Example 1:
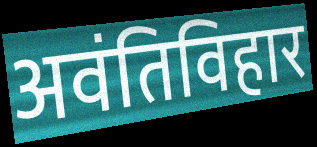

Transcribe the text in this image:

अवंतिविहार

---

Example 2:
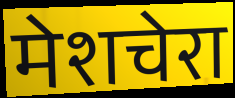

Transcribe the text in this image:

मेशचेरा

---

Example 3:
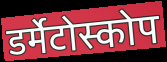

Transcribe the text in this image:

डर्मेटोस्कोप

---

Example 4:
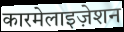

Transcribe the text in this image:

कारमेलाइज़ेशन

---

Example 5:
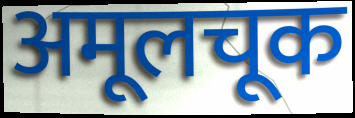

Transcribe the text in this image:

अमूलचूक